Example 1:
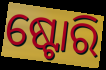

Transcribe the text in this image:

ଷ୍ଟୋରି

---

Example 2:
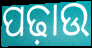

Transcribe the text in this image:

ପଢ଼ାଉ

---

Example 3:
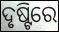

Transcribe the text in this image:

ଦୃଷ୍ଟିରେ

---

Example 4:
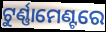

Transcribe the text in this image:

ଟୁର୍ଣ୍ଣାମେଣ୍ଟରେ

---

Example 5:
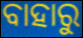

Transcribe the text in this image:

ବାହାରୁ